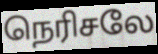
நெரிசலே